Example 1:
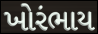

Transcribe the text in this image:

ખોરંભાય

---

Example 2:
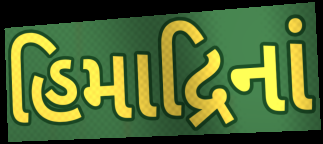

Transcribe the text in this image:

હિમાદ્રિનાં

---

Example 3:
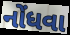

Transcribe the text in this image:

નોંધવા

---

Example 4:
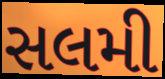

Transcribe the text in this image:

સલમી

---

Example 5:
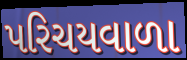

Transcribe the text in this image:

પરિચયવાળા